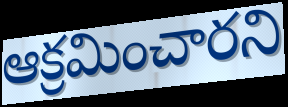
ఆక్రమించారని